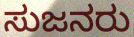
ಸುಜನರು